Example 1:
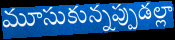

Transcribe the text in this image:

మూసుకున్నప్పుడల్లా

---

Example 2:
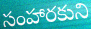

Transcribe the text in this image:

సంహారకుని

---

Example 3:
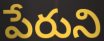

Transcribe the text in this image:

పేరుని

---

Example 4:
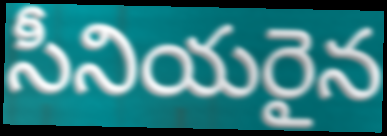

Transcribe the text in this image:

సీనియరైన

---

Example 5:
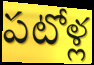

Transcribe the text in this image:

పటోళ్ల